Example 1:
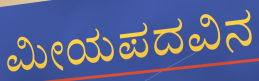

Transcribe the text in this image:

ಮೀಯಪದವಿನ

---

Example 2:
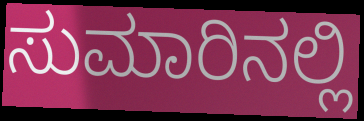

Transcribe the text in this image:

ಸುಮಾರಿನಲ್ಲಿ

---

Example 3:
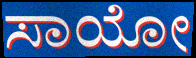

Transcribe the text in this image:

ಸಾಯೋ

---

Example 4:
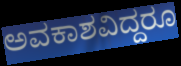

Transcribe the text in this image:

ಅವಕಾಶವಿದ್ದರೂ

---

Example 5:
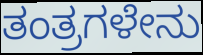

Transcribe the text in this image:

ತಂತ್ರಗಳೇನು